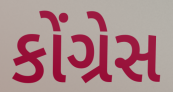
કોંગ્રેસ